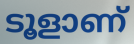
ടൂളാണ്